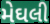
મેઘલી